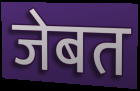
जेबत